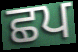
ਛਪ